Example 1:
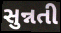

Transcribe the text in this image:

સુન્નતી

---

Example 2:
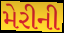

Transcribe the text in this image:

મેરીની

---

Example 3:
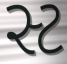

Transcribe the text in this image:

સ્ટ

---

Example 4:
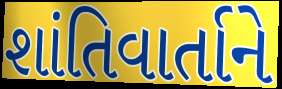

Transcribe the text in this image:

શાંતિવાર્તાને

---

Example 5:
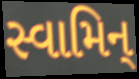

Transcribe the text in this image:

સ્વામિન્